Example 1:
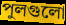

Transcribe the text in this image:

পুলগুলো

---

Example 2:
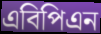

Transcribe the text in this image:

এবিপিএন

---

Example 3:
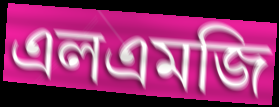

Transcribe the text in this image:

এলএমজি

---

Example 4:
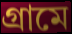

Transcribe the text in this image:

গ্রামে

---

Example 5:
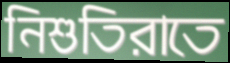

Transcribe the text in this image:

নিশুতিরাতে